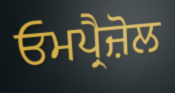
ਓਮਪ੍ਰੈਜ਼ੋਲ